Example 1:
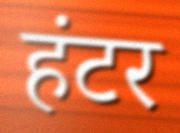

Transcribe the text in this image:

हंटर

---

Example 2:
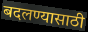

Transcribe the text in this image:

बदलण्यासाठी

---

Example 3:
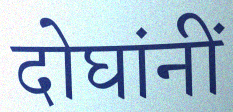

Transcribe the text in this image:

दोघांनीं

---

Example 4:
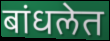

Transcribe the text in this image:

बांधलेत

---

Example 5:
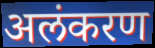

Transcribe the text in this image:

अलंकरण